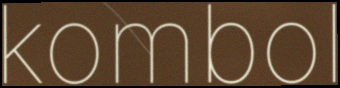
kombol